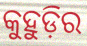
କୁହୁଡ଼ିର